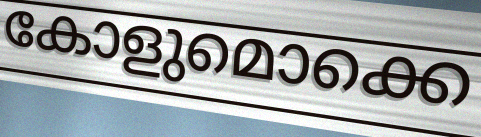
കോളുമൊക്കെ